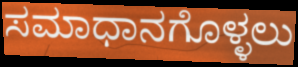
ಸಮಾಧಾನಗೊಳ್ಳಲು